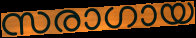
സരാഗായ